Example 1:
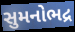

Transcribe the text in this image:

સુમનોભદ્ર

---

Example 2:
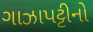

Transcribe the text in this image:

ગાઝાપટ્ટીનો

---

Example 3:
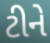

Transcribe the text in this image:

ટીને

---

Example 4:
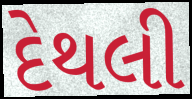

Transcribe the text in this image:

દેથલી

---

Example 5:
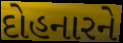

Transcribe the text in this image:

દોહનારને